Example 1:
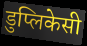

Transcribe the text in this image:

डुप्लिकेसी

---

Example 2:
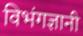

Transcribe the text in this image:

विभंगज्ञानी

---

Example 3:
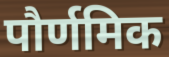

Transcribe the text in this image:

पौर्णमिक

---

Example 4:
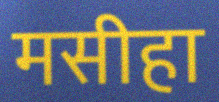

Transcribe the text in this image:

मसीहा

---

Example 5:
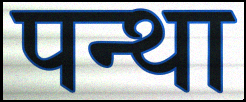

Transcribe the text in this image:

पन्‍था